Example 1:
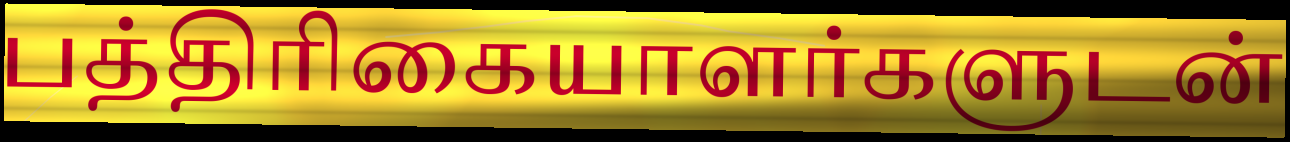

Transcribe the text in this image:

பத்திரிகையாளர்களுடன்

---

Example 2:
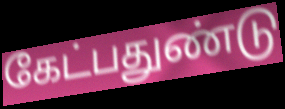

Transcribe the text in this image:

கேட்பதுண்டு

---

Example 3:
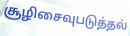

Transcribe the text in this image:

சூழிசைவுபடுத்தல்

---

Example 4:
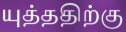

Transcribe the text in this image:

யுத்ததிற்கு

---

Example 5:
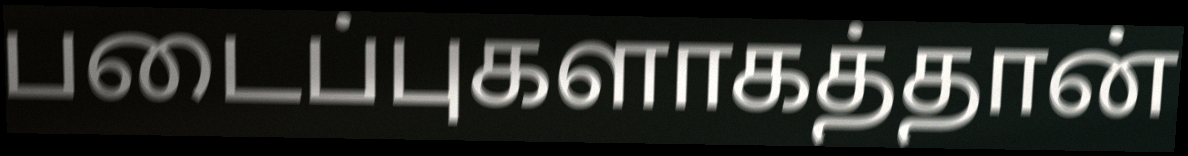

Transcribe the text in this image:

படைப்புகளாகத்தான்